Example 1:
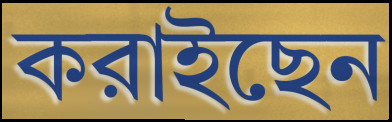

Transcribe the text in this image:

করাইছেন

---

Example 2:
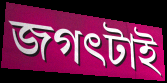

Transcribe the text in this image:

জগৎটাই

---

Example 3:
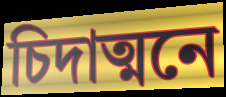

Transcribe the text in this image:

চিদাত্মনে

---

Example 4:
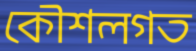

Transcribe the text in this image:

কৌশলগত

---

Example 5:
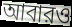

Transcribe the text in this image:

আবারও